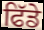
ਫਿੱਡੇ